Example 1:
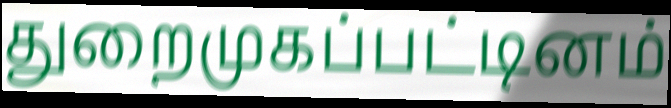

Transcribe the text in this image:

துறைமுகப்பட்டினம்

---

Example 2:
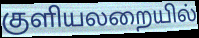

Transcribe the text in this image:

குளியலறையில்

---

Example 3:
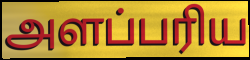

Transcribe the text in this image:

அளப்பரிய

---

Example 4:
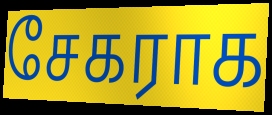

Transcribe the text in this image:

சேகராக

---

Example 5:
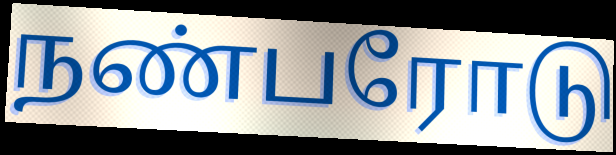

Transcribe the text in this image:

நண்பரோடு